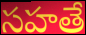
సహతే